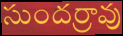
సుందర్రావు